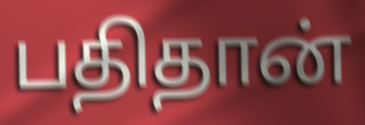
பதிதான்